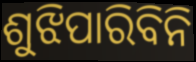
ଶୁଝିପାରିବିନି